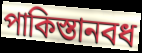
পাকিস্তানবধ